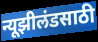
न्यूझीलंडसाठी